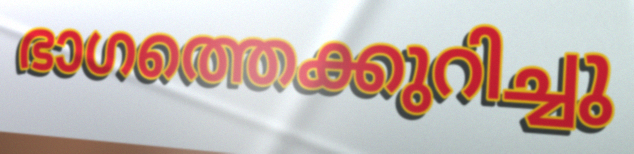
ഭാഗത്തെക്കുറിച്ചു